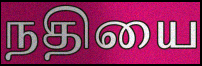
நதியை